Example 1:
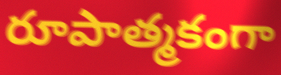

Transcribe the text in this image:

రూపాత్మకంగా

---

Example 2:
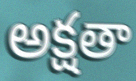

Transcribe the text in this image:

అక్షతా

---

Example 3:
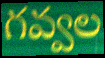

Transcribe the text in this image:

గవ్వల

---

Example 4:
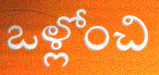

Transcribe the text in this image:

ఒళ్లోంచి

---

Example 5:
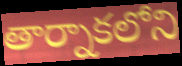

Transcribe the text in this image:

తార్నాకలోని